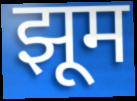
झूम